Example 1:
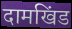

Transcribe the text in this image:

दामखिंड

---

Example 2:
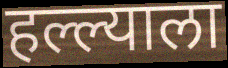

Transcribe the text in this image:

हल्ल्याला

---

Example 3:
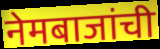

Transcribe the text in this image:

नेमबाजांची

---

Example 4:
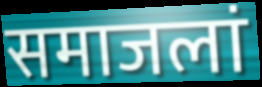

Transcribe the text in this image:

समाजलां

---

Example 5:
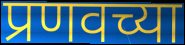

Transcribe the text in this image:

प्रणवच्या